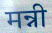
मन्नी